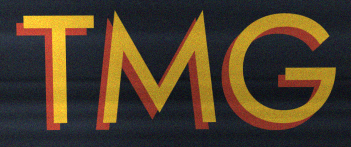
TMG